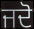
ਜਦੋ